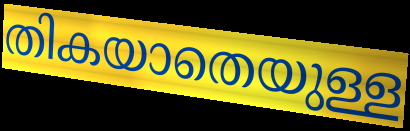
തികയാതെയുള്ള